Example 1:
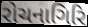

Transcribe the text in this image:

રોચનાગિરિ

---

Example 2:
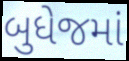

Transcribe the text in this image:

બુધેજમાં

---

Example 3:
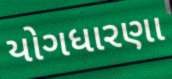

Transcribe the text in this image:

યોગધારણા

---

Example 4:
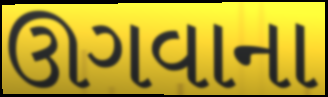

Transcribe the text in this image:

ઊગવાના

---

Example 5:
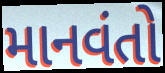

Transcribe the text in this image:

માનવંતો